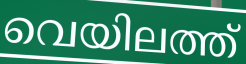
വെയിലത്ത്